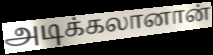
அடிக்கலானான்